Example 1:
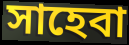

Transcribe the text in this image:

সাহেবা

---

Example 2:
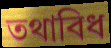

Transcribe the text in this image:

তথাবিধ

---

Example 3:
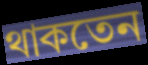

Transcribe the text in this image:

থাকতেন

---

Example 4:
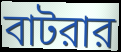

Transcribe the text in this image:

বাটরার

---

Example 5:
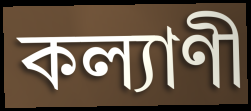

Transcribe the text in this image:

কল্যাণী